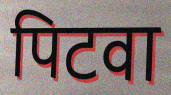
पिटवा